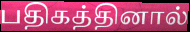
பதிகத்தினால்